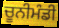
ਚੂਨੀਮੰਡੀ